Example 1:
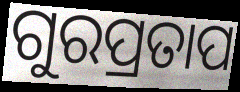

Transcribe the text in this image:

ଗୁରପ୍ରତାପ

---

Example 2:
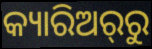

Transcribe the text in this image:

କ୍ୟାରିଅର୍‌ରୁ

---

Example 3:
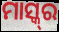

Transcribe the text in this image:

ମାସ୍କ୍‌ର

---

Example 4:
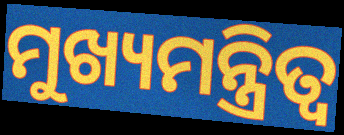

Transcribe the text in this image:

ମୁଖ୍ୟମନ୍ତ୍ରିତ୍ବ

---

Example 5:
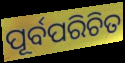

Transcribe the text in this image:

ପୂର୍ବପରିଚିତ